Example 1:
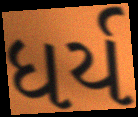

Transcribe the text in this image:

ધર્ય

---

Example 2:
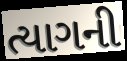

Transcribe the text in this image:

ત્યાગની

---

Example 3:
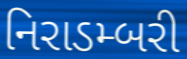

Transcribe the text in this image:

નિરાડમ્બરી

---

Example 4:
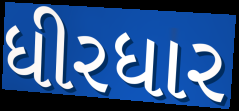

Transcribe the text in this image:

ધીરધાર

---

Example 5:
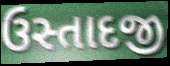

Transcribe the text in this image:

ઉસ્તાદજી